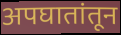
अपघातांतून